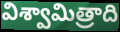
విశ్వామిత్రాది